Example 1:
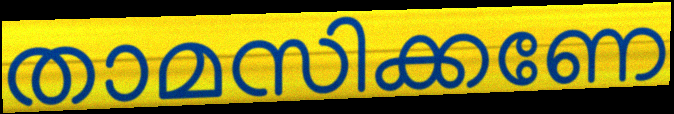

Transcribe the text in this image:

താമസിക്കണേ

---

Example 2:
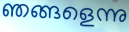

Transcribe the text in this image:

ഞങ്ങളെന്നു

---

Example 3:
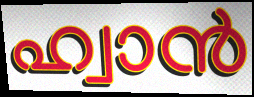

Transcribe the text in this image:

ഹ്വാൻ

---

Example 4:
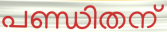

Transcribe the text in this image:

പണ്ഡിതന്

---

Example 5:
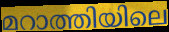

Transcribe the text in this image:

മറാത്തിയിലെ